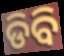
ଡିବି